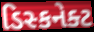
ડિસ્કનેક્ટ